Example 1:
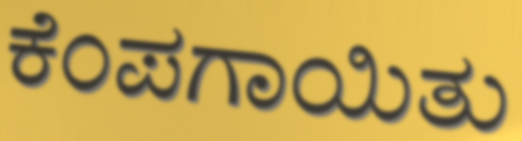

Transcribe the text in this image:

ಕೆಂಪಗಾಯಿತು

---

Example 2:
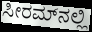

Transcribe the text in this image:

ಸೀರಮ್‌ನಲ್ಲಿ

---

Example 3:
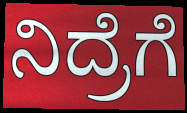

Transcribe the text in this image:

ನಿದ್ರೆಗೆ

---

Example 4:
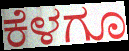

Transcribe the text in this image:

ಕೆಳಗೂ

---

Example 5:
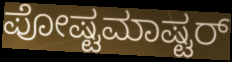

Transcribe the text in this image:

ಪೋಷ್ಟಮಾಷ್ಟರ್